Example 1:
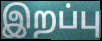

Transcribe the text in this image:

இறப்பு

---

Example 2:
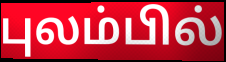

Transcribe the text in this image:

புலம்பில்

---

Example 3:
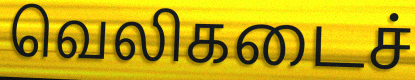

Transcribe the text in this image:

வெலிகடைச்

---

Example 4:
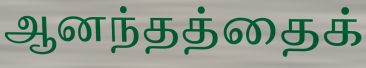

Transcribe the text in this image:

ஆனந்தத்தைக்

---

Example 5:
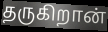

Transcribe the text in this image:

தருகிறான்